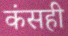
कंसही